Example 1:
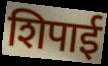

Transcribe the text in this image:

शिपाई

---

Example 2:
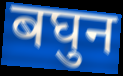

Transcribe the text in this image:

बघुन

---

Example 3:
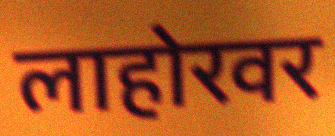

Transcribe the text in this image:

लाहोरवर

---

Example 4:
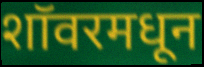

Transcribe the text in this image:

शॉवरमधून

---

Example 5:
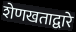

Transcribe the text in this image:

शेणखताद्वारे